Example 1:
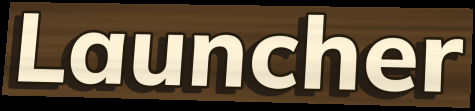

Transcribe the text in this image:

Launcher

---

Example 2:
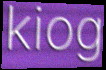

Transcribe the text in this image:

kiog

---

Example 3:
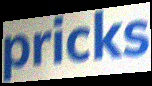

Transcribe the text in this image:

pricks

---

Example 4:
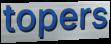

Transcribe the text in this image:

topers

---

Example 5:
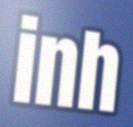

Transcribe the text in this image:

inh